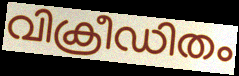
വിക്രീഡിതം